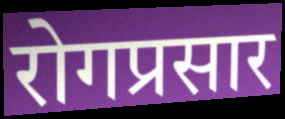
रोगप्रसार